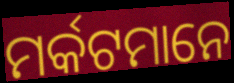
ମର୍କଟମାନେ